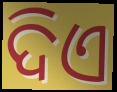
ଦିଏ